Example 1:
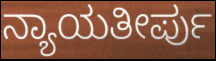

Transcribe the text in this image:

ನ್ಯಾಯತೀರ್ಪು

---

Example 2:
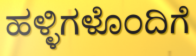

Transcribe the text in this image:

ಹಳ್ಳಿಗಳೊಂದಿಗೆ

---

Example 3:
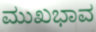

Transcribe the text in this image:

ಮುಖಭಾವ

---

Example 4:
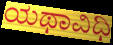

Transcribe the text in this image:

ಯಥಾವಿಧಿ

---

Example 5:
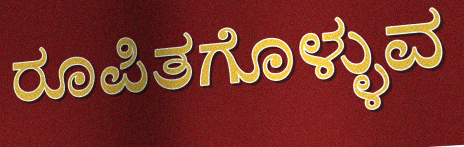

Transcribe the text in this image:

ರೂಪಿತಗೊಳ್ಳುವ